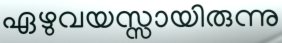
ഏഴുവയസ്സായിരുന്നു